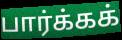
பார்க்கக்